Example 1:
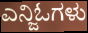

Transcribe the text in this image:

ಎನ್ಜಿಓಗಳು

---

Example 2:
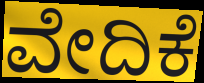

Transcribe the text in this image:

ವೇದಿಕೆ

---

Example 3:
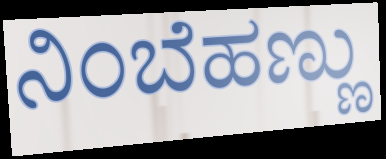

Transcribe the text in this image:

ನಿಂಬೆಹಣ್ಣು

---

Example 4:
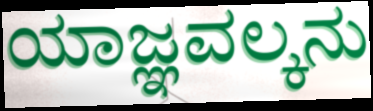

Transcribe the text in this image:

ಯಾಜ್ಞವಲ್ಕನು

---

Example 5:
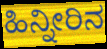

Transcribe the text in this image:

ಹಿನ್ನೀರಿನ